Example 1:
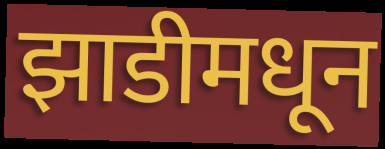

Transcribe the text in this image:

झाडीमधून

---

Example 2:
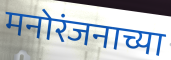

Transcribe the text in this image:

मनोरंजनाच्या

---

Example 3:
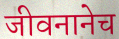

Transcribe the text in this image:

जीवनानेच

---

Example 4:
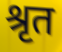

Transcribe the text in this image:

श्रृत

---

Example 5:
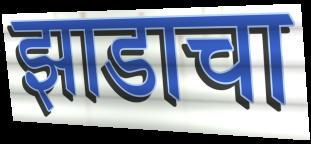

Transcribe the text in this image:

झाडाचा